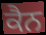
ਕੈਨ